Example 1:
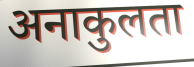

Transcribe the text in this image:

अनाकुलता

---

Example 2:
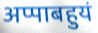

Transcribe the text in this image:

अप्पाबहुयं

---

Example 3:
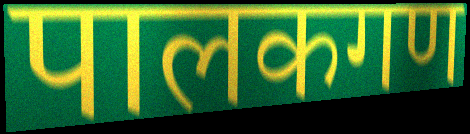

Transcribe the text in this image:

पालकगण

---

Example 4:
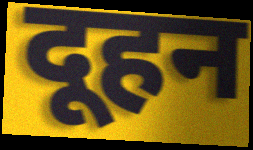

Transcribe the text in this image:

दूहन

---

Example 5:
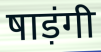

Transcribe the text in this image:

षाड़ंगी